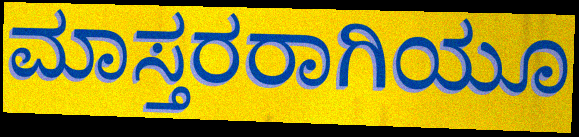
ಮಾಸ್ತರರಾಗಿಯೂ